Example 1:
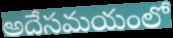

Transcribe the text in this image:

అదేసమయంలో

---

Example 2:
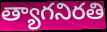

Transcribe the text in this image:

త్యాగనిరతి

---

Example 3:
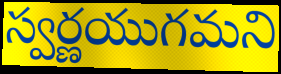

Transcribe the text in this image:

స్వర్ణయుగమని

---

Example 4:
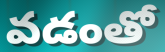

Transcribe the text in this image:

వడంతో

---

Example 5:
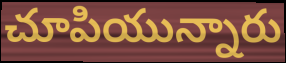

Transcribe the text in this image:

చూపియున్నారు